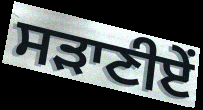
ਸੜਾਣੀਏਂ